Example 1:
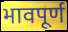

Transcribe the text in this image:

भावपूर्ण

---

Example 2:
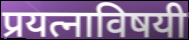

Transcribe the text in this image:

प्रयत्नाविषयी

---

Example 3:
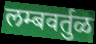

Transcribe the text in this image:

लम्बवर्तुळ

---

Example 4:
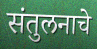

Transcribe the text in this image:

संतुलनाचे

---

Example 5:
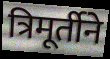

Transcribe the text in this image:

त्रिमूर्तीने